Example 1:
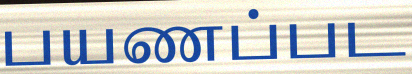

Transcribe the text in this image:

பயணப்பட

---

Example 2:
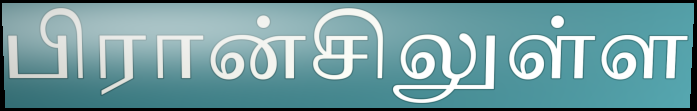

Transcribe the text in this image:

பிரான்சிலுள்ள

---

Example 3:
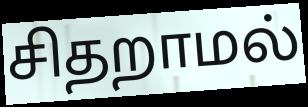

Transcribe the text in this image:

சிதறாமல்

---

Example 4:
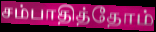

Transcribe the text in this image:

சம்பாதித்தோம்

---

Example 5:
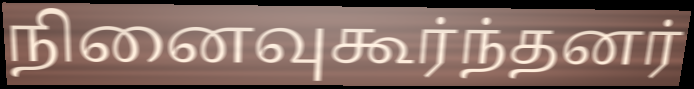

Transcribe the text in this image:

நினைவுகூர்ந்தனர்